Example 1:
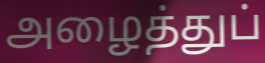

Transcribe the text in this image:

அழைத்துப்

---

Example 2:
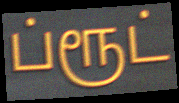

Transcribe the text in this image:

ப்ரூட்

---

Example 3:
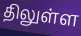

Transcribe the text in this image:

திலுள்ள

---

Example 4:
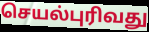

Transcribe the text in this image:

செயல்புரிவது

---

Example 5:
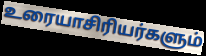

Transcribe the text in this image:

உரையாசிரியர்களும்